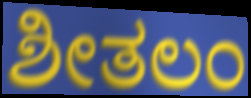
ಶೀತಲಂ